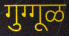
गुग्गूळ